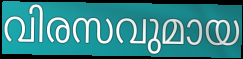
വിരസവുമായ